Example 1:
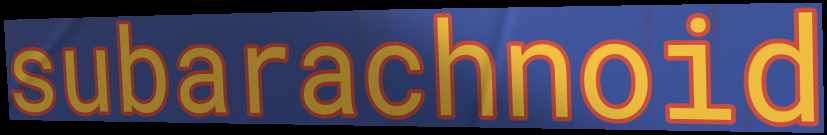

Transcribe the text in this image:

subarachnoid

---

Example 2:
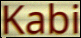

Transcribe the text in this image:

Kabi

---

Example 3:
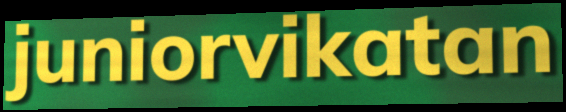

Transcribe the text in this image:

juniorvikatan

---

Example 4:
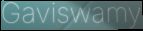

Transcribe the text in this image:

Gaviswamy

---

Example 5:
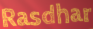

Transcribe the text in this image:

Rasdhar